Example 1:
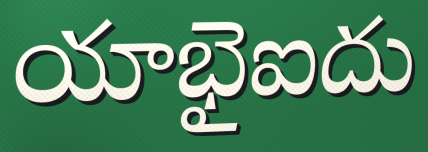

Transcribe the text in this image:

యాభైఐదు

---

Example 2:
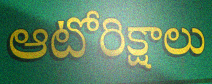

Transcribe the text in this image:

ఆటోరిక్షాలు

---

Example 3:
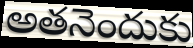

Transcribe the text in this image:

అతనెందుకు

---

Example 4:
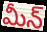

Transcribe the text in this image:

మీన్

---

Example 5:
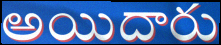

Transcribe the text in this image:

అయిదారు